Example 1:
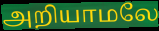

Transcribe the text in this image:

அறியாமலே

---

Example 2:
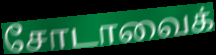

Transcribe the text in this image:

சோடாவைக்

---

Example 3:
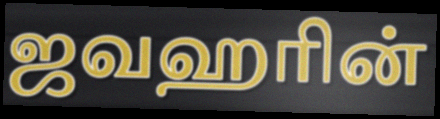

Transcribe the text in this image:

ஜவஹரின்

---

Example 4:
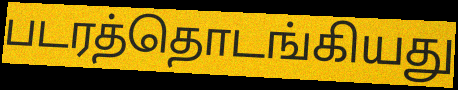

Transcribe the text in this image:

படரத்தொடங்கியது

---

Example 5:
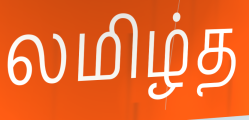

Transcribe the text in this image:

லமிழ்த